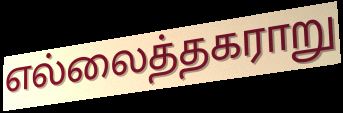
எல்லைத்தகராறு